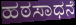
ಹಠಸಾಧನೆ